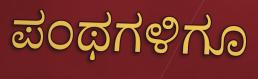
ಪಂಥಗಳಿಗೂ